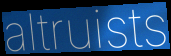
altruists